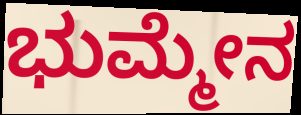
ಭುಮ್ಮೇನ